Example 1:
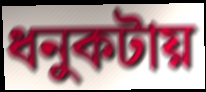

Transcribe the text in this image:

ধনুকটায়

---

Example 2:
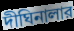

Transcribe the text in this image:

দীঘিনালার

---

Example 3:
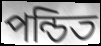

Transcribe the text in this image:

পন্ডিত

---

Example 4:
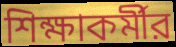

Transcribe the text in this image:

শিক্ষাকর্মীর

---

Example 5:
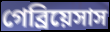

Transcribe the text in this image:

গেব্রিয়েসাস